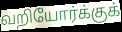
வறியோர்க்குக்